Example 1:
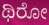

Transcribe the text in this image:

ಥಿರೋ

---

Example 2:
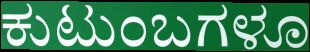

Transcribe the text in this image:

ಕುಟುಂಬಗಳೂ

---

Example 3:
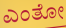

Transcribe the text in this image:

ಎಂತೋ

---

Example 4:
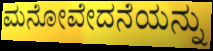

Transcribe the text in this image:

ಮನೋವೇದನೆಯನ್ನು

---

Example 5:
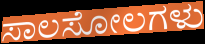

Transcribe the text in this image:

ಸಾಲಸೋಲಗಳು